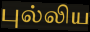
புல்லிய